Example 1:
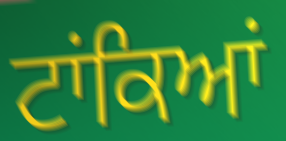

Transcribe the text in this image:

ਟਾਂਕਿਆਂ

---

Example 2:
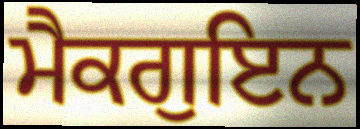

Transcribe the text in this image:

ਮੈਕਗੁਇਨ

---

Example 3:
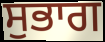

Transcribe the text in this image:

ਸੁਭਾਗ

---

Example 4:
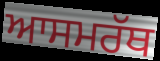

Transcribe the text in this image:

ਆਸਮਰੱਥ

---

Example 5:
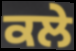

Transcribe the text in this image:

ਕਲੇ